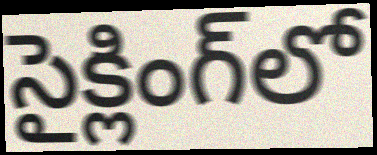
సైక్లింగ్‌లో